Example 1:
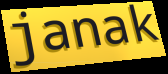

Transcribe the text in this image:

janak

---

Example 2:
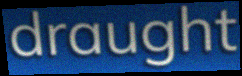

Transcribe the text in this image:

draught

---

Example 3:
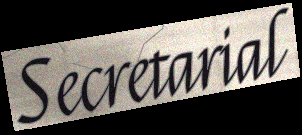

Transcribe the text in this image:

Secretarial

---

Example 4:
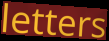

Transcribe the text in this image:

letters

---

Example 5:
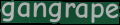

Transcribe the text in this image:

gangrape